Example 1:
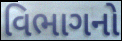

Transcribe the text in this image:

વિભાગનો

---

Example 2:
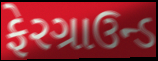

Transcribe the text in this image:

ફેરગ્રાઉન્ડ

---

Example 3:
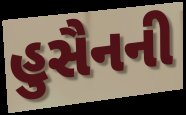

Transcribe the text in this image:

હુસૈનની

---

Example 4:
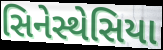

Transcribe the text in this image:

સિનેસ્થેસિયા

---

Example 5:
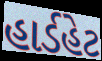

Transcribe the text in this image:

હાર્ડહેટ